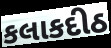
કલાકદીઠ